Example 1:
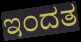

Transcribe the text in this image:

ಇಂದತ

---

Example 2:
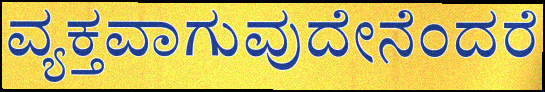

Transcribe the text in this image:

ವ್ಯಕ್ತವಾಗುವುದೇನೆಂದರೆ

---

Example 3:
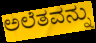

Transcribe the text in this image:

ಅಲೆತವನ್ನು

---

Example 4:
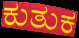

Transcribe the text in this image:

ಕುತುಕ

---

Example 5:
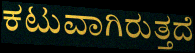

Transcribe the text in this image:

ಕಟುವಾಗಿರುತ್ತದೆ